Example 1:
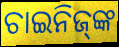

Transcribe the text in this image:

ଚାଇନିଜ୍‌ଙ୍କ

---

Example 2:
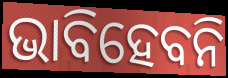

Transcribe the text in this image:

ଭାବିହେବନି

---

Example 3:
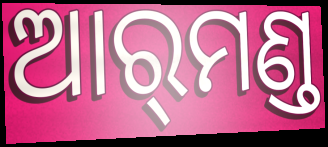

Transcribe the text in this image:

ଆର୍‌ମଣ୍ଡ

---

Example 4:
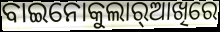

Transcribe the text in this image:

ବାଇନୋକୁଲାର୍‌ଆଖିରେ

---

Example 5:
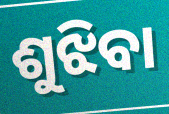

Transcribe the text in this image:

ଶୁଝିବା